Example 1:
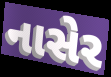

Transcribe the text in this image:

નાસેર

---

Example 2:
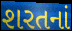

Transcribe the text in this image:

શરતનાં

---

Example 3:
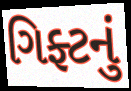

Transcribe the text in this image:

ગિફ્ટનું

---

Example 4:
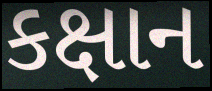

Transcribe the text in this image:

કક્ષાન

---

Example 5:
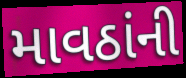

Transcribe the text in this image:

માવઠાંની